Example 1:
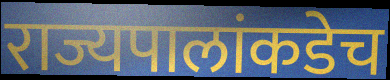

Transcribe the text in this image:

राज्यपालांकडेच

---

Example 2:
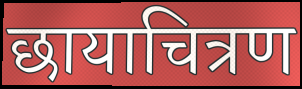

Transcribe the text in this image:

छायाचित्रण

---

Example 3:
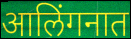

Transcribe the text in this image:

आलिंगनात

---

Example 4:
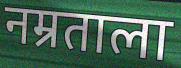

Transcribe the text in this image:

नम्रताला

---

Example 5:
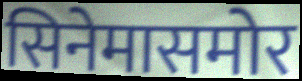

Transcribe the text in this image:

सिनेमासमोर